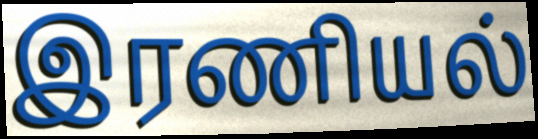
இரணியல்